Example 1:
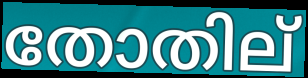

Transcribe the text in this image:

തോതില്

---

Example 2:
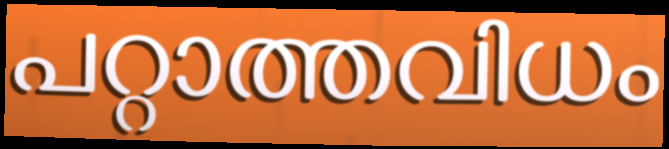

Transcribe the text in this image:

പറ്റാത്തവിധം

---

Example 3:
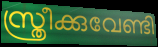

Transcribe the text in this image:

സ്ത്രീക്കുവേണ്ടി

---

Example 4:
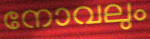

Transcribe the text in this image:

നോവലും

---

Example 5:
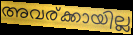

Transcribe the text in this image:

അവര്ക്കായില്ല